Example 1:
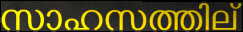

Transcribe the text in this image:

സാഹസത്തില്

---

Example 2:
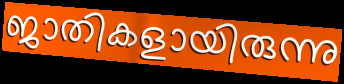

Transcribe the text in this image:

ജാതികളായിരുന്നു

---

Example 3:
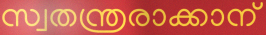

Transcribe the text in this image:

സ്വതന്ത്രരാക്കാന്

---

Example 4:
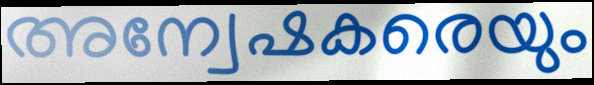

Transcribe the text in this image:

അന്വേഷകരെയും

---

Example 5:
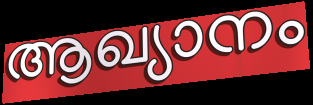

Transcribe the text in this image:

ആഖ്യാനം